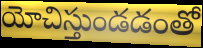
యోచిస్తుండడంతో